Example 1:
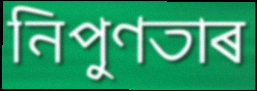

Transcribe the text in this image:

নিপুণতাৰ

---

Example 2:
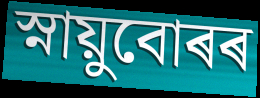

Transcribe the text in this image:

স্নায়ুবোৰৰ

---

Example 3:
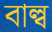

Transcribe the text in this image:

বাল্ব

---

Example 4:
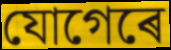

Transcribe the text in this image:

যোগেৰে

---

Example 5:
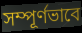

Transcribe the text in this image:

সম্পূৰ্ণভাবে